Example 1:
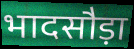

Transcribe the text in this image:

भादसौड़ा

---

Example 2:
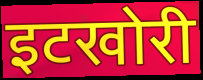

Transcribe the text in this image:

इटखोरी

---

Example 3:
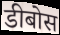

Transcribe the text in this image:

डीबोस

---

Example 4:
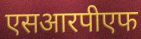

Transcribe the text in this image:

एसआरपीएफ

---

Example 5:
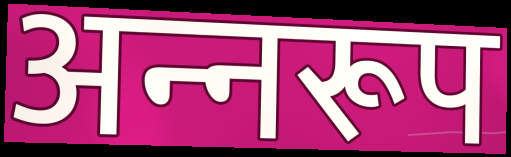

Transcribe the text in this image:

अन्नरूप